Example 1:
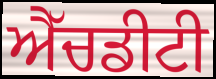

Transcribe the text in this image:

ਐੱਚਡੀਟੀ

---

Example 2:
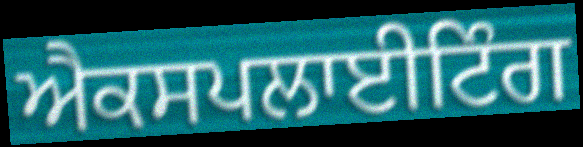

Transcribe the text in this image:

ਐਕਸਪਲਾਈਟਿੰਗ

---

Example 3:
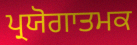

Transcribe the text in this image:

ਪ੍ਰਯੋਗਾਤਮਕ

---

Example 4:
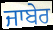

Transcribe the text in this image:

ਜਾਬੇਰ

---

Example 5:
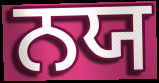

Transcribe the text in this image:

ਨਯ